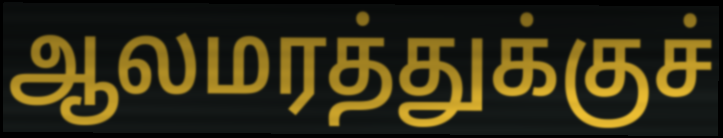
ஆலமரத்துக்குச்